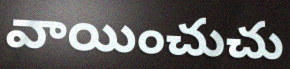
వాయించుచు